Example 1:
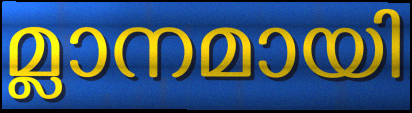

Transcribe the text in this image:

മ്ലാനമായി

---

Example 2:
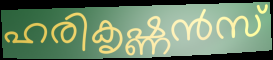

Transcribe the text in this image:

ഹരികൃഷ്ണൻസ്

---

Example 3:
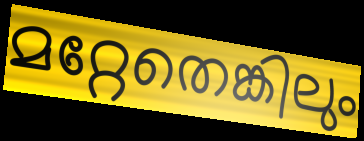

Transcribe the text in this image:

മറ്റേതെങ്കിലും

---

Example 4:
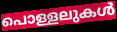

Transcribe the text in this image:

പൊള്ളലുകൾ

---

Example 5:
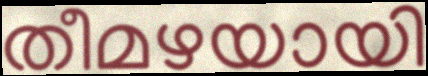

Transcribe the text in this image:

തീമഴയായി